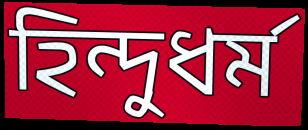
হিন্দুধর্ম